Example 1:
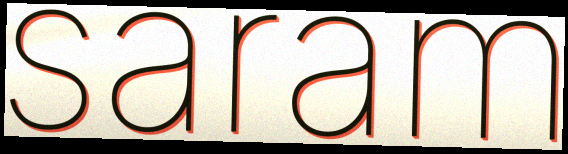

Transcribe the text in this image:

saram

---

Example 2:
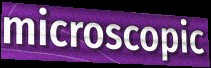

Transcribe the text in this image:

microscopic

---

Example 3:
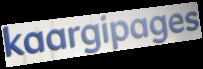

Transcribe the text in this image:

kaargipages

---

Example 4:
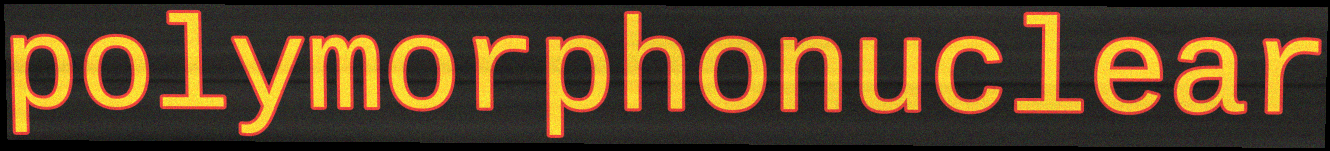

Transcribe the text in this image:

polymorphonuclear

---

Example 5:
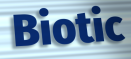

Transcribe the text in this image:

Biotic